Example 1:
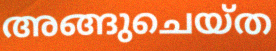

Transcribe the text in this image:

അങ്ങുചെയ്ത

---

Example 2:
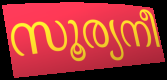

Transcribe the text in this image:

സൂര്യനീ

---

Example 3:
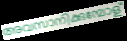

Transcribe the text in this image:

അവസാനിക്കുമ്പോള്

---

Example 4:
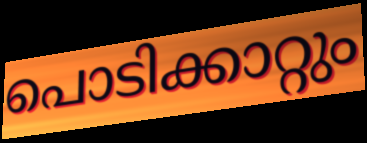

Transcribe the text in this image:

പൊടിക്കാറ്റും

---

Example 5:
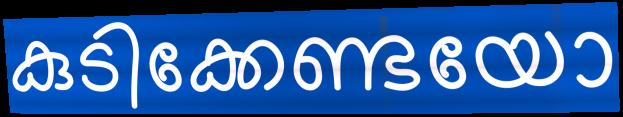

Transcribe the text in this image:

കുടിക്കേണ്ടയോ